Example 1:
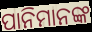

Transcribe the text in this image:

ପାନିମାନଙ୍କ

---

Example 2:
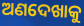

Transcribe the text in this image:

ଅଣଦେଖାକୁ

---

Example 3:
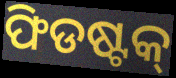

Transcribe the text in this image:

ଫିଡଷ୍ଟକ୍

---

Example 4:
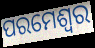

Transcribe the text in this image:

ପରମେଶ୍ବର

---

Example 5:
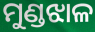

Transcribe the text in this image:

ମୁଣ୍ଡଝାଳ